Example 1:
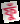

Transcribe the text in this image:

ফুঁ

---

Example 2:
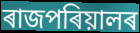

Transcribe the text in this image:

ৰাজপৰিয়ালৰ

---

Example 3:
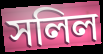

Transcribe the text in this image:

সলিল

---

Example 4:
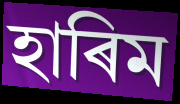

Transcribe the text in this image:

হাৰিম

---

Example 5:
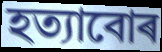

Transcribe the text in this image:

হত্যাবোৰ